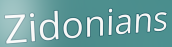
Zidonians